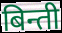
बिन्ती